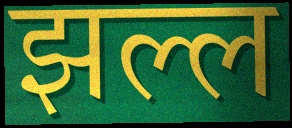
झल्ल